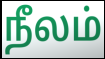
நீலம்